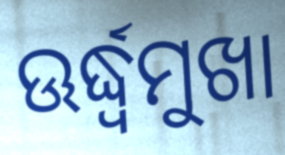
ଊର୍ଦ୍ଧ୍ବମୁଖା